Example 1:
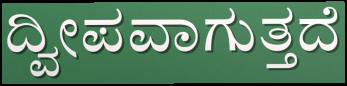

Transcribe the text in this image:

ದ್ವೀಪವಾಗುತ್ತದೆ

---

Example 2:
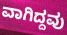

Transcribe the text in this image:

ವಾಗಿದ್ದವು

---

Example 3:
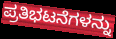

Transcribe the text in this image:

ಪ್ರತಿಭಟನೆಗಳನ್ನು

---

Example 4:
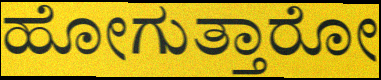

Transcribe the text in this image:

ಹೋಗುತ್ತಾರೋ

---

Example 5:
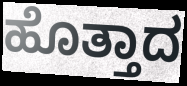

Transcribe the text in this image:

ಹೊತ್ತಾದ